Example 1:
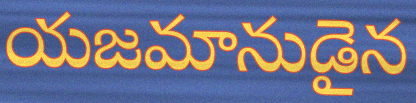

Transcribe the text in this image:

యజమానుడైన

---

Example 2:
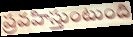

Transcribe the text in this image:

ప్రవహిస్తుంటుంది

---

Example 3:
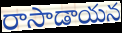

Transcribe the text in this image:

రాసాడాయన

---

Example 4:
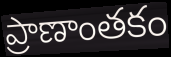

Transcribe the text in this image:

ప్రాణాంతకం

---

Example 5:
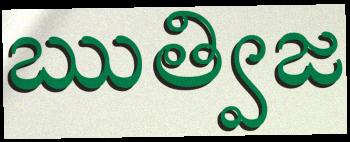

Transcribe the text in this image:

ఋత్విజ